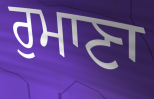
ਰੁਮਾਣਾ